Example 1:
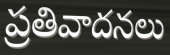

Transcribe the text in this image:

ప్రతివాదనలు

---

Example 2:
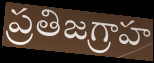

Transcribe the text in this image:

ప్రతిజగ్రాహ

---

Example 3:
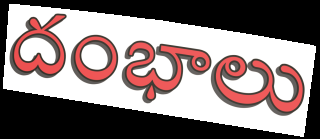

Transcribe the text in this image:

దంభాలు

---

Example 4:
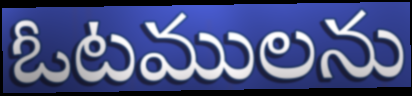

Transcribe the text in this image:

ఓటములను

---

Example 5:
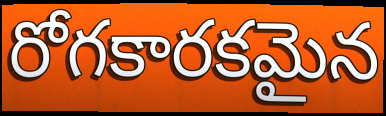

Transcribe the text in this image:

రోగకారకమైన